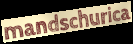
mandschurica